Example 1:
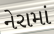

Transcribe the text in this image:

નેરામાં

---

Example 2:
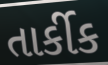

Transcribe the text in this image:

તાર્કીક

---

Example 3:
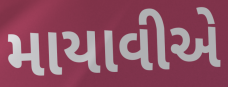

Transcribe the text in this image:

માયાવીએ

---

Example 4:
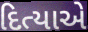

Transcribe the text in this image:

દિત્યાએ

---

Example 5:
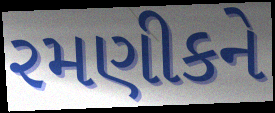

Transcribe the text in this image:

રમણીકને